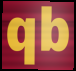
qb